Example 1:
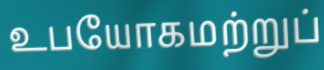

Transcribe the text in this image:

உபயோகமற்றுப்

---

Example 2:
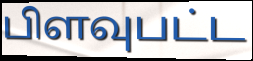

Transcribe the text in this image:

பிளவுபட்ட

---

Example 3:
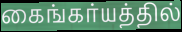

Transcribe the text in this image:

கைங்கர்யத்தில்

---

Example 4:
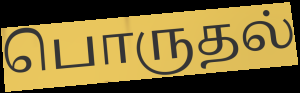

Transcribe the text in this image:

பொருதல்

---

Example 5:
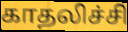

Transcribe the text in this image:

காதலிச்சி